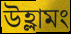
উহ্লামং